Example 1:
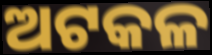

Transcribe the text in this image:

ଅଟକଳ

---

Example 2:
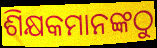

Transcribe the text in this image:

ଶିକ୍ଷକମାନଙ୍କଠୁ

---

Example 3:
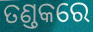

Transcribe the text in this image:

ତଣ୍ଡକରେ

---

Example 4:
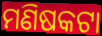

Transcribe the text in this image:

ମଣିଷକଟା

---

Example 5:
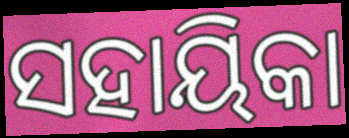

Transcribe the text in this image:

ସହାୟିକା